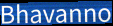
Bhavanno